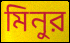
মিনুর